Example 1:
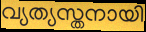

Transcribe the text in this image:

വ്യത്യസ്തനായി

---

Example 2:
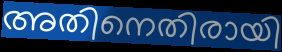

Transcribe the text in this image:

അതിനെതിരായി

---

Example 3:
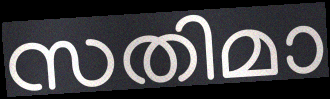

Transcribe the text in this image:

സതിമാ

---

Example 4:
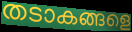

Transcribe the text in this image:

തടാകങ്ങളെ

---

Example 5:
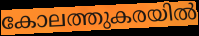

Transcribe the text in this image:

കോലത്തുകരയിൽ